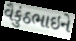
વૈકુંઠભાઇને